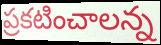
ప్రకటించాలన్న